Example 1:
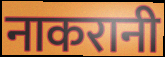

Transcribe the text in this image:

नाकरानी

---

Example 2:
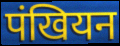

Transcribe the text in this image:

पंखियन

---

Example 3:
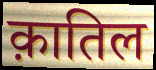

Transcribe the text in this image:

क़ातिल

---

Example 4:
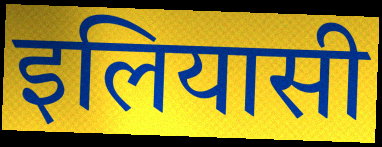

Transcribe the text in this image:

इलियासी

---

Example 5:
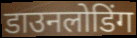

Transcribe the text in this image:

डाउनलोडिंग